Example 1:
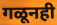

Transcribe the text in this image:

गळूनही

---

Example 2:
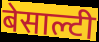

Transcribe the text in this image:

बेसाल्टी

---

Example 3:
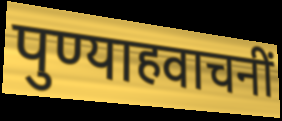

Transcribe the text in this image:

पुण्याहवाचनीं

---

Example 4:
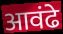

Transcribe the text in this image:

आवंढे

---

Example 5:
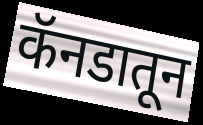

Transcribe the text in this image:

कॅनडातून